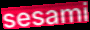
sesami